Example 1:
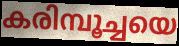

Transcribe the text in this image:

കരിമ്പൂച്ചയെ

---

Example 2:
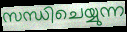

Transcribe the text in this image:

സന്ധിചെയ്യുന്ന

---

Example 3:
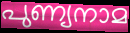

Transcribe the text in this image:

പുണ്യനാമ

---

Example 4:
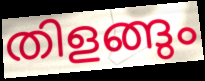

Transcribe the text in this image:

തിളങ്ങും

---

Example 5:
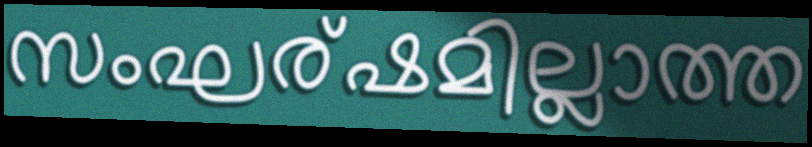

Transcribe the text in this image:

സംഘര്ഷമില്ലാത്ത